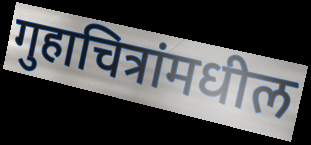
गुहाचित्रांमधील